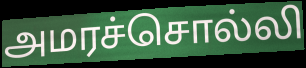
அமரச்சொல்லி